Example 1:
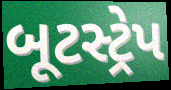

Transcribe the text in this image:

બૂટસ્ટ્રેપ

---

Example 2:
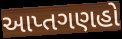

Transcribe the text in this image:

આપ્તગણહો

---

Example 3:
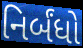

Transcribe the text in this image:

નિર્બંધો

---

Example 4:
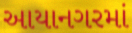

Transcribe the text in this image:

આયાનગરમાં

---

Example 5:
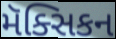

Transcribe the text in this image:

મૅક્સિકન